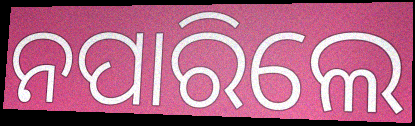
ନପାରିଲେ